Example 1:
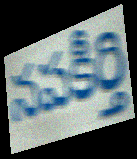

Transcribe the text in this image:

నపకీర్తి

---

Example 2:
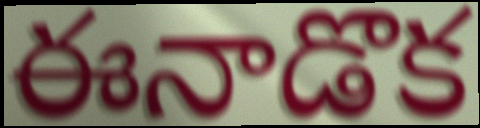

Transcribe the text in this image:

ఈనాడొక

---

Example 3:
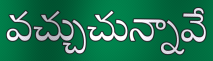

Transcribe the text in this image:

వచ్చుచున్నావే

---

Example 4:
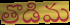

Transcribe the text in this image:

తొడిమ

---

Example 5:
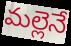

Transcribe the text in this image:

మల్లెనే